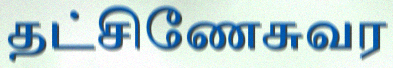
தட்சிணேசுவர